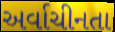
અર્વાચીનતા